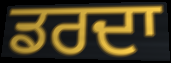
ਡਰਦਾ